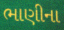
ભાણીના